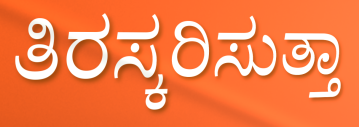
ತಿರಸ್ಕರಿಸುತ್ತಾ